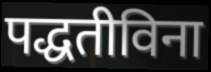
पद्धतीविना